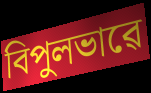
বিপুলভাৱে